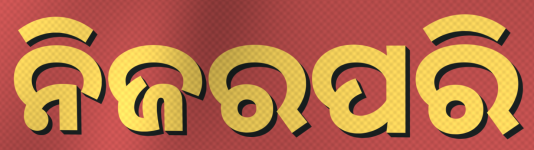
ନିଜରପରି